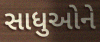
સાધુઓને